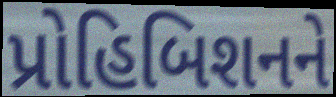
પ્રોહિબિશનને